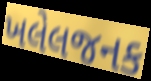
ખલેલજનક